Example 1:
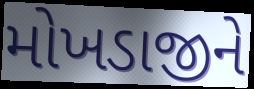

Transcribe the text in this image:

મોખડાજીને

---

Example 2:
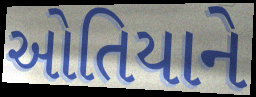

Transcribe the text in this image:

ઓતિયાને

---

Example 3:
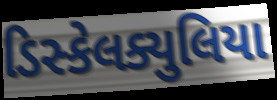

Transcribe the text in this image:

ડિસ્કેલક્યુલિયા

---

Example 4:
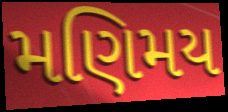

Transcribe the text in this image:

મણિમય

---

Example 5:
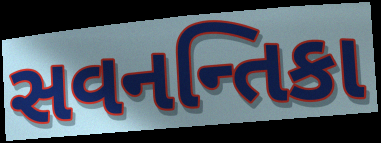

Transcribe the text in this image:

સવનન્તિકા